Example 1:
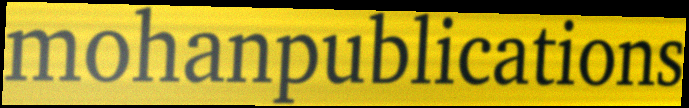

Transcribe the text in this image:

mohanpublications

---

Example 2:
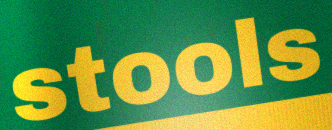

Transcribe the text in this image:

stools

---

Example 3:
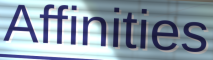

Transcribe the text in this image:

Affinities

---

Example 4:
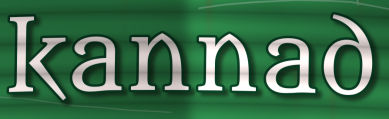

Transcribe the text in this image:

kannad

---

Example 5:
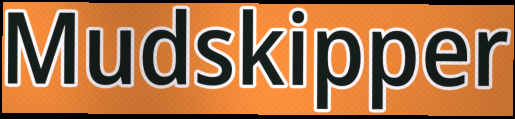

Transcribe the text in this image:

Mudskipper